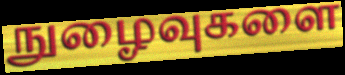
நுழைவுகளை